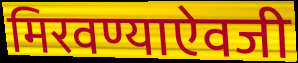
मिरवण्याऐवजी